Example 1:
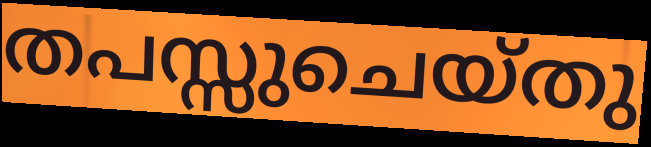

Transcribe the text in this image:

തപസ്സുചെയ്തു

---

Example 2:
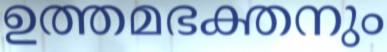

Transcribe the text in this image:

ഉത്തമഭക്തനും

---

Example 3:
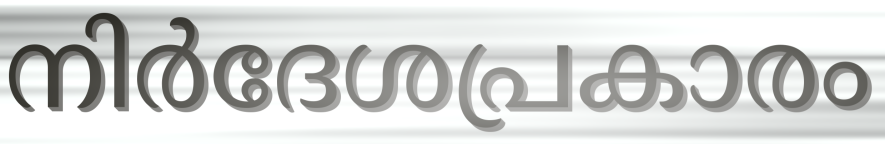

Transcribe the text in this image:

നിർദേശപ്രകാരം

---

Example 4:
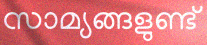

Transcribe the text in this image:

സാമ്യങ്ങളുണ്ട്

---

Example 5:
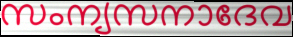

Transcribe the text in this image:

സംന്യസനാദേവ